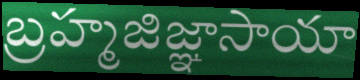
బ్రహ్మజిజ్ఞాసాయా